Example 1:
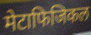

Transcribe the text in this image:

मेटाफिजिकल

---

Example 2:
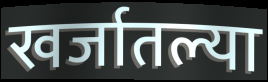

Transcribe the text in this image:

खर्जातल्या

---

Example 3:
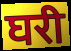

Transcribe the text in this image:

घरी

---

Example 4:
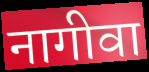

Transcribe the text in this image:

नागीवा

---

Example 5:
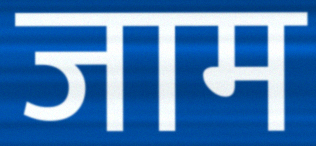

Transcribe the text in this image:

जाम